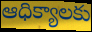
ఆధిక్యాలకు